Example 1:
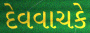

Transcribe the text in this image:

દેવવાચકે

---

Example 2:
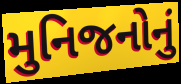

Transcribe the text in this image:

મુનિજનોનું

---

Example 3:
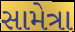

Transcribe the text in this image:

સામેત્રા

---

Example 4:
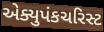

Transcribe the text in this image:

એક્યુપંકચરિસ્ટ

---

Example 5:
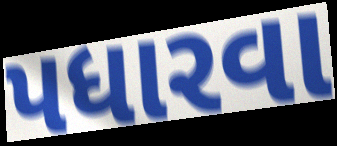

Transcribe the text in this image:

પધારવા